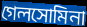
গেলসোমিনা